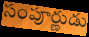
సంపూర్ణుడు